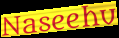
Naseehu